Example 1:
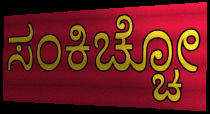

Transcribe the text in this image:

ಸಂಕಿಚ್ಚೋ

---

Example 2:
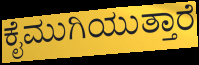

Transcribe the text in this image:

ಕೈಮುಗಿಯುತ್ತಾರೆ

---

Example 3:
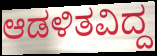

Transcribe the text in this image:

ಆಡಳಿತವಿದ್ದ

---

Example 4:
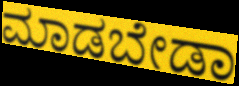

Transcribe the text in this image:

ಮಾಡಬೇಡಾ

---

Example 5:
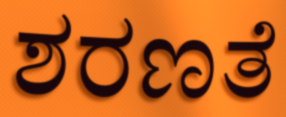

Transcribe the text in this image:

ಶರಣತೆ